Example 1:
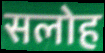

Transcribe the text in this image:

सलोह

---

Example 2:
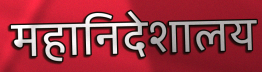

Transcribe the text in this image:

महानिदेशालय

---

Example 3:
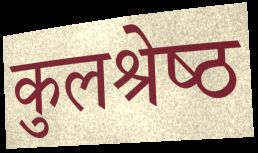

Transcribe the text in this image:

कुलश्रेष्‍ठ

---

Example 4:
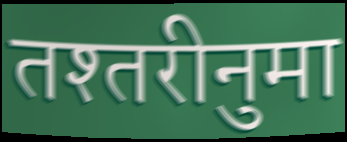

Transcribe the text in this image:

तश्तरीनुमा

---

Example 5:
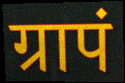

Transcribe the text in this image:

ग्रापं